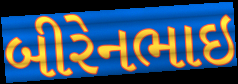
બીરેનભાઇ